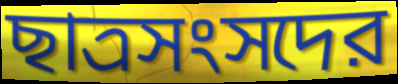
ছাত্রসংসদের